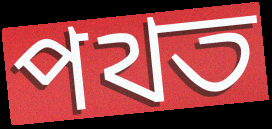
পথত